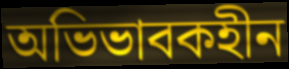
অভিভাবকহীন